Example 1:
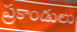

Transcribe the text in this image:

ప్రకాండులు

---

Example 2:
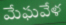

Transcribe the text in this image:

మేఘవేళ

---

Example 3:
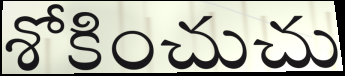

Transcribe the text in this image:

శోకించుచు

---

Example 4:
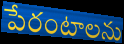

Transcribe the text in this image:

పేరంటాలను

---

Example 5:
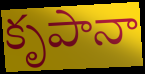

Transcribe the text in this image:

కృపానా